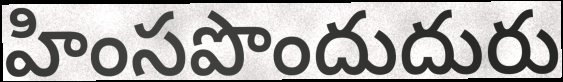
హింసపొందుదురు